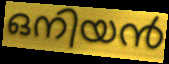
ഒനിയൻ